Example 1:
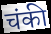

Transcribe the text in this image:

चंकी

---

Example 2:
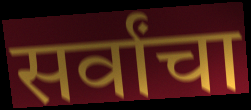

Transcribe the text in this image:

सर्वांचा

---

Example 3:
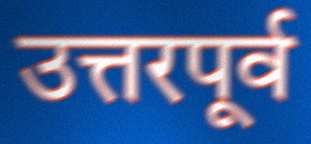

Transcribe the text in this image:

उत्तरपूर्व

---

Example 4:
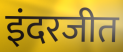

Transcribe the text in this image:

इंदरजीत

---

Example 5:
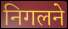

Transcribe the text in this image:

निगलने